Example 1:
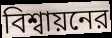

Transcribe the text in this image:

বিশ্বায়নের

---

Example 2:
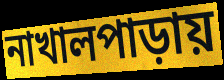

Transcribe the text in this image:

নাখালপাড়ায়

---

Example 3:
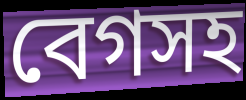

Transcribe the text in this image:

বেগসহ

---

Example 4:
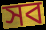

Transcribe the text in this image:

সব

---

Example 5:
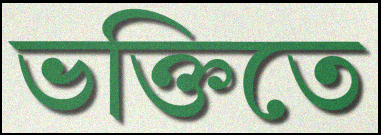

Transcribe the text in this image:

ভক্তিতে